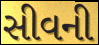
સીવની